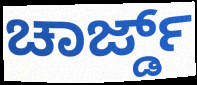
ಚಾರ್ಜ್ಡ್